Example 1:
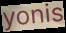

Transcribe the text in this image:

yonis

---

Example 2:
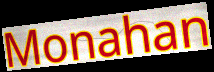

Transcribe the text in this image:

Monahan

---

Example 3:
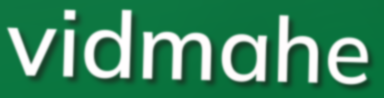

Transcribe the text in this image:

vidmahe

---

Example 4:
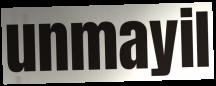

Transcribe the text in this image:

unmayil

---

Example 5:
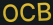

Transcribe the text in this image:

OCB